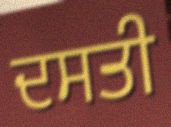
ਦਸਤੀ